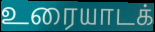
உரையாடக்